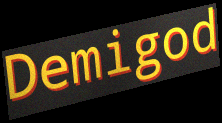
Demigod